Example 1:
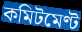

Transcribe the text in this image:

কমিটমেণ্ট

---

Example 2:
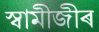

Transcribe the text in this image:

স্বামীজীৰ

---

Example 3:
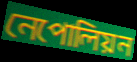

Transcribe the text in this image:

নেপোলিয়ন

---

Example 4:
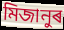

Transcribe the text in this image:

মিজানুৰ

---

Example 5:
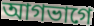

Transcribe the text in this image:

আগভাগে